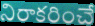
నిరాకరించే